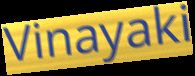
Vinayaki